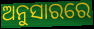
ଅନୁସାରରେ